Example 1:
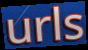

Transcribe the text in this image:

urls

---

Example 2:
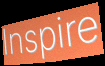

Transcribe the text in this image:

Inspire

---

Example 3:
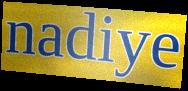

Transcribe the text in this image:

nadiye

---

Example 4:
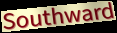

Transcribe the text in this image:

Southward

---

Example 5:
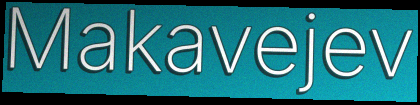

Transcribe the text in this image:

Makavejev